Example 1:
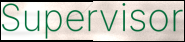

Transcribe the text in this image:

Supervisor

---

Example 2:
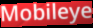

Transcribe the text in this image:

Mobileye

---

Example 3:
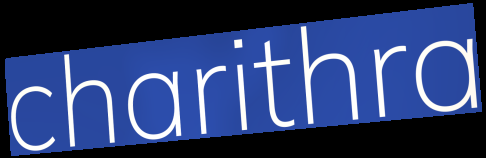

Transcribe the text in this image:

charithra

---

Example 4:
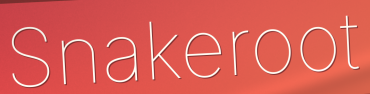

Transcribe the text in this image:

Snakeroot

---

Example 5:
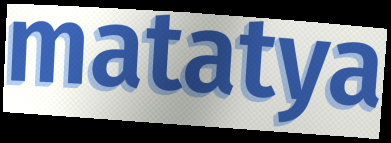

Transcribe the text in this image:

matatya